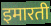
इमारती